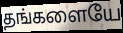
தங்களையே